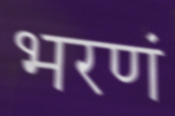
भरणं